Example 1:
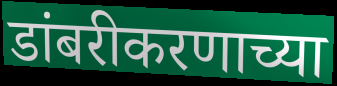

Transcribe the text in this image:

डांबरीकरणाच्या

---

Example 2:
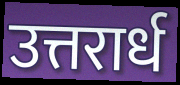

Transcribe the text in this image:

उत्तरार्ध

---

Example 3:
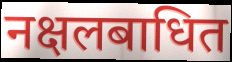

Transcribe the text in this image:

नक्षलबाधित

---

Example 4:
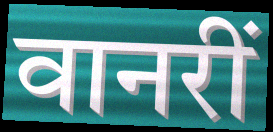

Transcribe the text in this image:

वानरीं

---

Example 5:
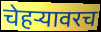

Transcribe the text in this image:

चेहर्‍यावरच